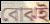
বোঝই